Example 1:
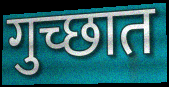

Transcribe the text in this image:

गुच्छात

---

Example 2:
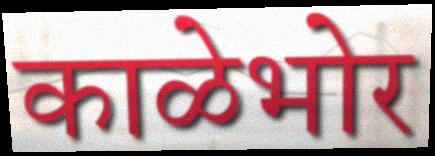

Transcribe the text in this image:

काळेभोर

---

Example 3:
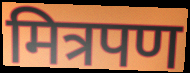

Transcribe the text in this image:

मित्रपण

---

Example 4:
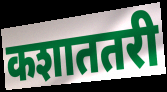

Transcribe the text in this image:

कशाततरी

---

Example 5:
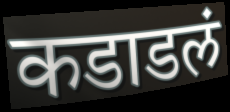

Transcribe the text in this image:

कडाडलं